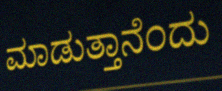
ಮಾಡುತ್ತಾನೆಂದು